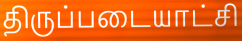
திருப்படையாட்சி